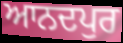
ਆਨਦਪੁਰ